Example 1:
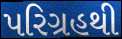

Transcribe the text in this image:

પરિગ્રહથી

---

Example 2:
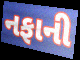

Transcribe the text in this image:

નફાની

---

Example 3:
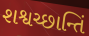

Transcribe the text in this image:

શશ્વચ્છાન્તિં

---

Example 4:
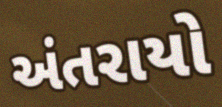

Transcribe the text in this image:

અંતરાયો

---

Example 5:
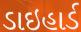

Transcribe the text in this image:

ડાઇહાર્ડ